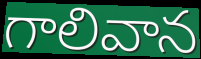
గాలివాన